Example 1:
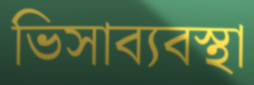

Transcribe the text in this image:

ভিসাব্যবস্থা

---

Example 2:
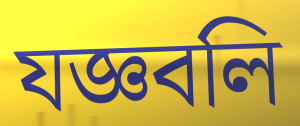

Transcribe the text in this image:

যজ্ঞবলি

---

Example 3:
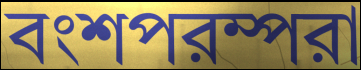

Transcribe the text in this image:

বংশপরম্পরা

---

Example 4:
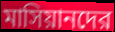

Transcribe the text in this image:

মাসিয়ানদের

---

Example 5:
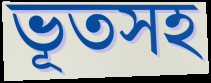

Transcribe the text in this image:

ভূতসহ